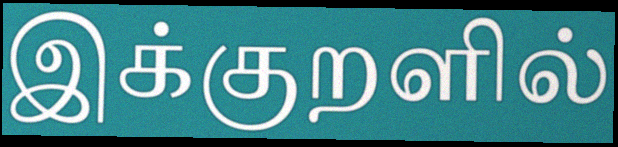
இக்குறளில்